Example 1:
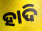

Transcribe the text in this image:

ହାଦି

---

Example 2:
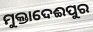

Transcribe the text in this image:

ମୁକ୍ତାଦେଈପୁର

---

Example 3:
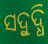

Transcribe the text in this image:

ସଦ୍ବୁଦ୍ଧି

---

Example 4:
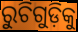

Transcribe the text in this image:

ରୁଚିଗୁଡ଼ିକୁ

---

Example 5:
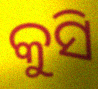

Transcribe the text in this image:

କୁସି